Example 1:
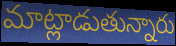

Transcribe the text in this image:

మాట్లాడుతున్నారు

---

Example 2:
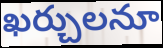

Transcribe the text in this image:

ఖర్చులనూ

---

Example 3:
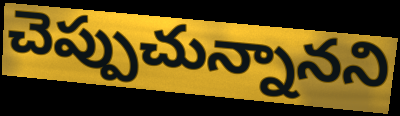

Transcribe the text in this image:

చెప్పుచున్నానని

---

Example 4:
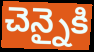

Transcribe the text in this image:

చెన్నైకి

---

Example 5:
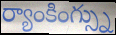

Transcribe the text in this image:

ర్యాంకింగ్స్ను